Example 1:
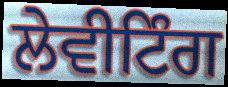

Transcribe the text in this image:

ਲੇਵੀਟਿੰਗ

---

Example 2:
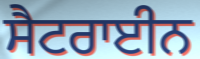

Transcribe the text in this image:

ਸੈਟਰਾਈਨ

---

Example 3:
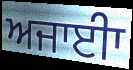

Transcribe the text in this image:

ਅਜਾਈਾ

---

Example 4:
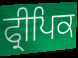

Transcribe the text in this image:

ਫ੍ਰੀਪਿਕ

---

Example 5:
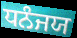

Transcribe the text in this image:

ਧਨੰਜਯ